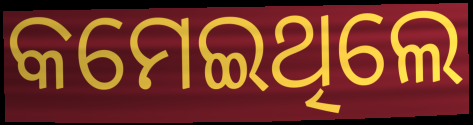
କମେଇଥିଲେ